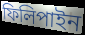
ফিলিপাইন